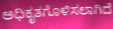
ಅಧಿಕೃತಗೊಳಿಸಲಾಗಿದೆ